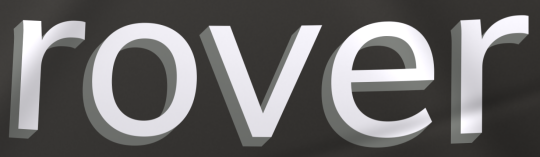
rover